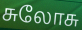
சுலோசு